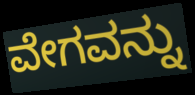
ವೇಗವನ್ನು